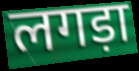
लगड़ा